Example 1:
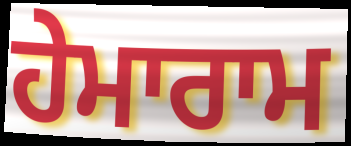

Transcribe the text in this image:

ਹੇਮਾਰਾਮ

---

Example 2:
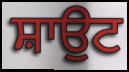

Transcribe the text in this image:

ਸ਼ਾਉਟ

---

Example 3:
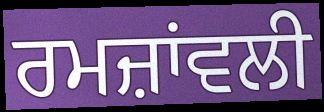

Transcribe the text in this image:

ਰਮਜ਼ਾਂਵਲੀ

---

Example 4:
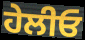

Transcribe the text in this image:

ਹੇਲੀਓ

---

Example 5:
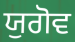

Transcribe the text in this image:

ਯੁਗੋਵ